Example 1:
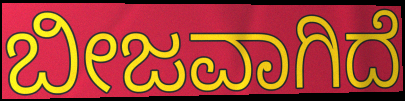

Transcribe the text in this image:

ಬೀಜವಾಗಿದೆ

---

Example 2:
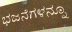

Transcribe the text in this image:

ಭಜನೆಗಳನ್ನೂ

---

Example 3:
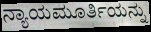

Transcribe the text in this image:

ನ್ಯಾಯಮೂರ್ತಿಯನ್ನು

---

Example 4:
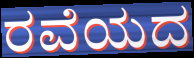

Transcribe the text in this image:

ರವೆಯದ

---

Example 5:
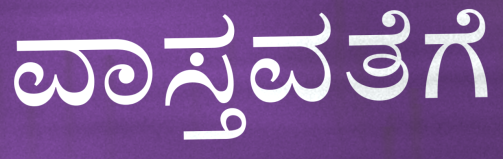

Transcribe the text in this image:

ವಾಸ್ತವತೆಗೆ